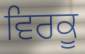
ਵਿਰਕੂ